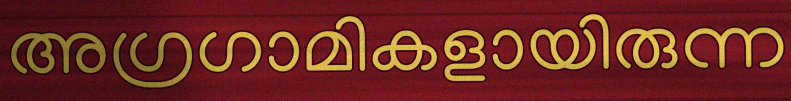
അഗ്രഗാമികളായിരുന്ന